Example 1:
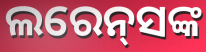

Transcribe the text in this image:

ଲରେନ୍‌ସଙ୍କ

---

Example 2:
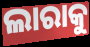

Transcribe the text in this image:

ଲାରାକୁ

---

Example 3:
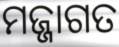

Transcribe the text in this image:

ମଜ୍ଜାଗତ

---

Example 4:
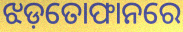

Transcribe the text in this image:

ଝଡ଼ତୋଫାନରେ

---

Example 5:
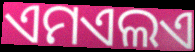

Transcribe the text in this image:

ଏମଏଲଏ